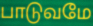
பாடுவமே